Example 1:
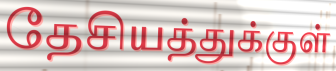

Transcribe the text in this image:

தேசியத்துக்குள்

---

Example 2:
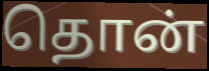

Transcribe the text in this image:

தொன்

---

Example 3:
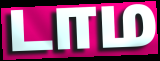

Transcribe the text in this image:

டாம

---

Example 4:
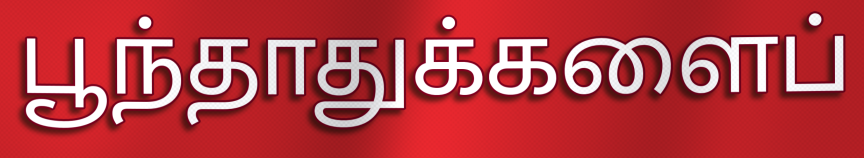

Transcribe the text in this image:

பூந்தாதுக்களைப்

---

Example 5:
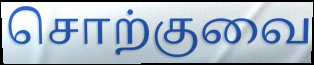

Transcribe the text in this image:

சொற்குவை